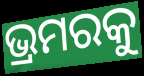
ଭ୍ରମରକୁ